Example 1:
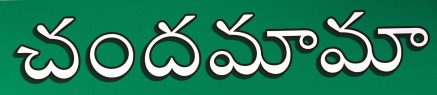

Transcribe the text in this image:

చందమామా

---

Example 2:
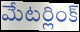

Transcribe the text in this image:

మేటర్లింక్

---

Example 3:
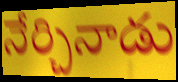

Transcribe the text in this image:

నేర్చినాడు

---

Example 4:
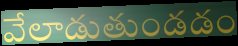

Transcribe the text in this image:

వేలాడుతుండడం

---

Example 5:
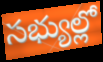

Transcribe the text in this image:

సభ్యుల్లో